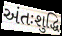
અંતઃશુદ્ધિ